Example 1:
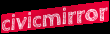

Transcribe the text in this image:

civicmirror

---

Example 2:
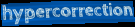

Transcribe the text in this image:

hypercorrection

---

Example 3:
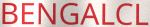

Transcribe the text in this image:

BENGALCL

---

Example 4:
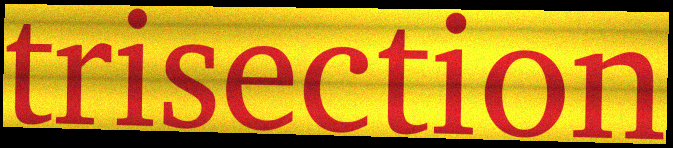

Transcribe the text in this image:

trisection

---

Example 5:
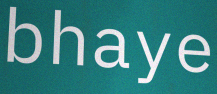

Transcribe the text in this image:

bhaye